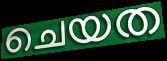
ചെയത